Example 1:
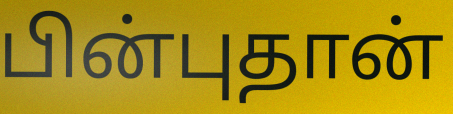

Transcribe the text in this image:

பின்புதான்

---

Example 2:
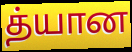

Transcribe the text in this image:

த்யான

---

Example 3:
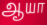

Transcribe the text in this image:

ஆயா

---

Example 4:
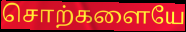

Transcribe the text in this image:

சொற்களையே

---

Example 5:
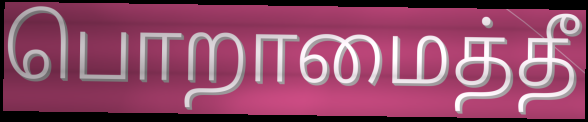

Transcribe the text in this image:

பொறாமைத்தீ